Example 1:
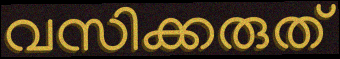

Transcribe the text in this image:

വസിക്കരുത്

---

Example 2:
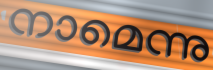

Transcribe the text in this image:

നാമെന്നു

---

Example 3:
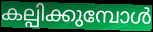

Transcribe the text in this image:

കല്പിക്കുമ്പോൾ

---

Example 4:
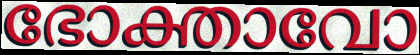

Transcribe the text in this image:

ഭോക്താവോ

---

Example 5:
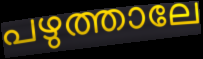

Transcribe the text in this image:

പഴുത്താലേ